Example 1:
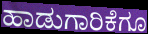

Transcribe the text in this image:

ಹಾಡುಗಾರಿಕೆಗೂ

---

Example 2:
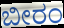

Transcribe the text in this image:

ಬೀರಂ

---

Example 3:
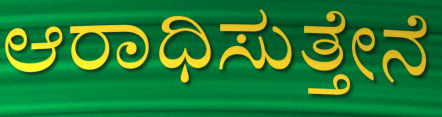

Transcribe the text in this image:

ಆರಾಧಿಸುತ್ತೇನೆ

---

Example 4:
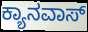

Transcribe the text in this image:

ಕ್ಯಾನವಾಸ್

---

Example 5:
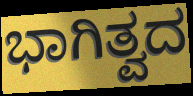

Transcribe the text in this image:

ಭಾಗಿತ್ವದ